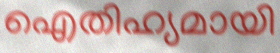
ഐതിഹ്യമായി